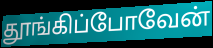
தூங்கிப்போவேன்